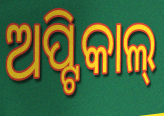
ଅପ୍ଟିକାଲ୍